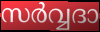
സർവ്വദാ